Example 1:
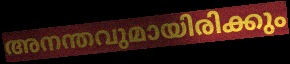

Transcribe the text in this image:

അനന്തവുമായിരിക്കും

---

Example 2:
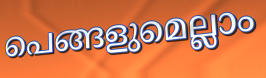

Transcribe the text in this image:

പെങ്ങളുമെല്ലാം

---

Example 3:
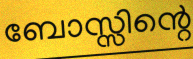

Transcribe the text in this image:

ബോസ്സിന്റെ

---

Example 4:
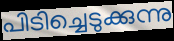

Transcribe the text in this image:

പിടിച്ചെടുക്കുന്നു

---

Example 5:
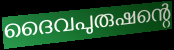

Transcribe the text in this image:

ദൈവപുരുഷന്റെ